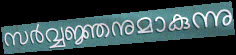
സർവ്വജ്ഞനുമാകുന്നു